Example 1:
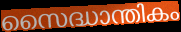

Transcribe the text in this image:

സൈദ്ധാന്തികം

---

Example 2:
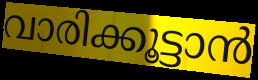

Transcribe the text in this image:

വാരിക്കൂട്ടാൻ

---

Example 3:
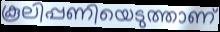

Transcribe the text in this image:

കൂലിപ്പണിയെടുത്താണ്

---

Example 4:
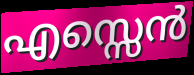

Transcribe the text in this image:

എസ്സെൻ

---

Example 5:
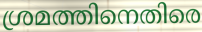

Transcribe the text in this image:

ശ്രമത്തിനെതിരെ